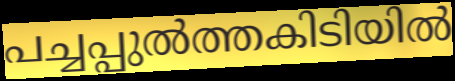
പച്ചപ്പുൽത്തകിടിയിൽ